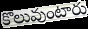
కొలువుంటారు